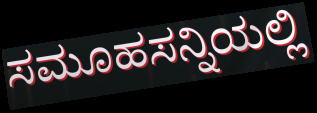
ಸಮೂಹಸನ್ನಿಯಲ್ಲಿ